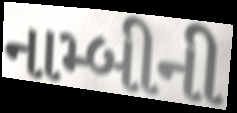
નામ્બીની